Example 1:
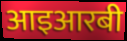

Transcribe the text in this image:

आइआरबी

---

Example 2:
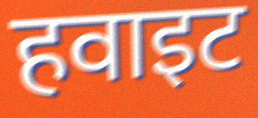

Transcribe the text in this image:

हवाइट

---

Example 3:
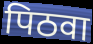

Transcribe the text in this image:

पिठवा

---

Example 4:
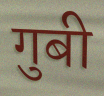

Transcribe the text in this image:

गुबी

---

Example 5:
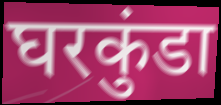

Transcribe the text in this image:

घरकुंडा